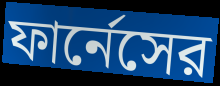
ফার্নেসের